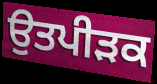
ਉਤਪੀੜਕ